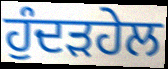
ਹੁੰਦੜਹੇਲ